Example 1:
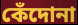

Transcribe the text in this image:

কেঁদোনা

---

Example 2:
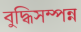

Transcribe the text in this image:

বুদ্ধিসম্পন্ন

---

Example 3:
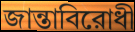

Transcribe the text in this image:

জান্তাবিরোধী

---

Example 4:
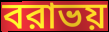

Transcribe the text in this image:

বরাভয়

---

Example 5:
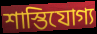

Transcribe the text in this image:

শাস্তিযোগ্য